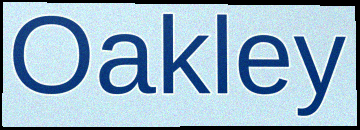
Oakley